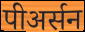
पीअर्सन